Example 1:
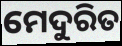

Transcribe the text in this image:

ମେଦୁରିତ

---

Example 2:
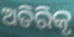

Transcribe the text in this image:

ଅତିରିକୃ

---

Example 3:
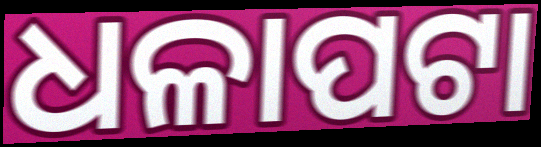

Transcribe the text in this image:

ଧଳାପଟା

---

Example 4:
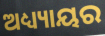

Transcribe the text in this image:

ଅଧ୍ୟ୍ୟାୟର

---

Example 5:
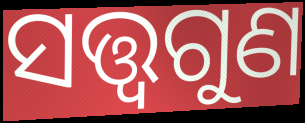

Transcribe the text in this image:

ସତ୍ତ୍ୱଗୁଣ